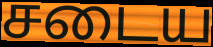
சடைய